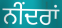
ਨੀਂਦਰਾਂ